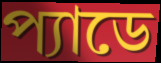
প্যাডে